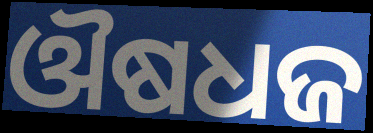
ଔଷଧଜ